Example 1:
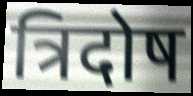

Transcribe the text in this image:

त्रिदोष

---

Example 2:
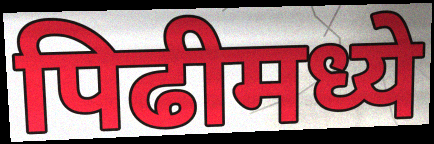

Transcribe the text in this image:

पिढीमध्ये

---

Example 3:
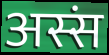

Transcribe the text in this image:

अस्सं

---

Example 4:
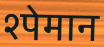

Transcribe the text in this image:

श्पेमान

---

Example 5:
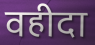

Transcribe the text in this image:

वहीदा